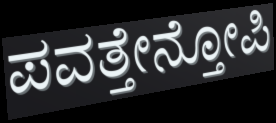
ಪವತ್ತೇನ್ತೋಪಿ